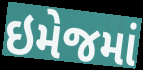
ઇમેજમાં